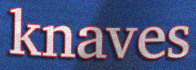
knaves